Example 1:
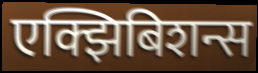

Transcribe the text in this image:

एक्झिबिशन्स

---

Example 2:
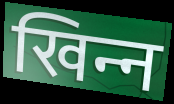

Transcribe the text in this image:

खिन्न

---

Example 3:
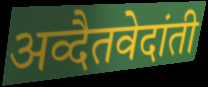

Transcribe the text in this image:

अव्दैतवेदांती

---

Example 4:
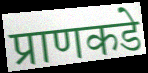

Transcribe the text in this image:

प्राणकडे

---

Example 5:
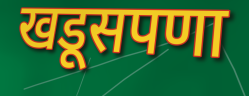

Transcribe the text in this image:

खडूसपणा